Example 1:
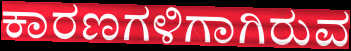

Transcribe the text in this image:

ಕಾರಣಗಳಿಗಾಗಿರುವ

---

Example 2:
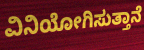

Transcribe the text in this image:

ವಿನಿಯೋಗಿಸುತ್ತಾನೆ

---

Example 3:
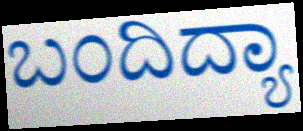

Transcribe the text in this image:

ಬಂದಿದ್ಯಾ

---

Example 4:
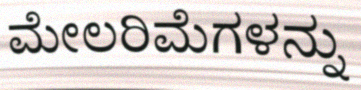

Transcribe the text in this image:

ಮೇಲರಿಮೆಗಳನ್ನು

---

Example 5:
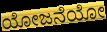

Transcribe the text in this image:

ಯೋಜನೆಯೋ